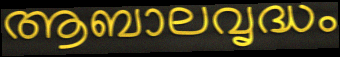
ആബാലവൃദ്ധം